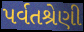
પર્વતશ્રેણી